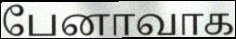
பேனாவாக